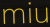
miu